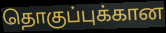
தொகுப்புக்கான